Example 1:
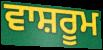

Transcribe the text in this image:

ਵਾਸ਼ਰੂਮ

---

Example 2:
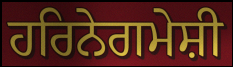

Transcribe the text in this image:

ਹਰਿਨੇਗਮੇਸ਼ੀ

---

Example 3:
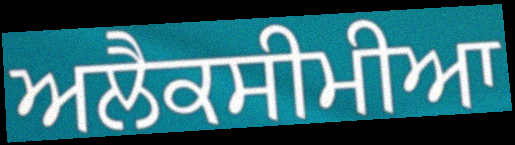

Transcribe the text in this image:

ਅਲੈਕਸੀਮੀਆ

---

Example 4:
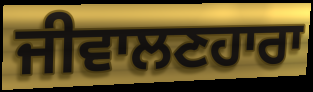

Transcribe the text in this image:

ਜੀਵਾਲਣਹਾਰਾ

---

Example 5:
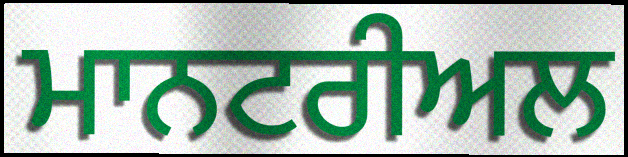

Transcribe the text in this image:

ਮਾਨਟਰੀਅਲ